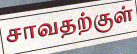
சாவதற்குள்